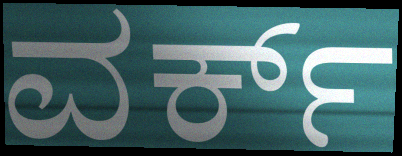
ವರ್ಕ್